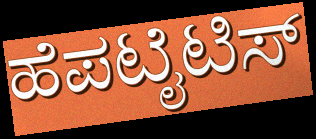
ಹೆಪಟೈಟಿಸ್